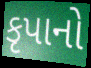
કૃપાનો